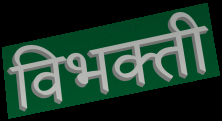
विभक्ती